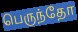
பெருந்தோ